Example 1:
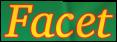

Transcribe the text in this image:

Facet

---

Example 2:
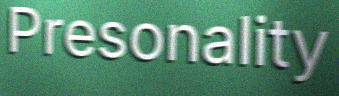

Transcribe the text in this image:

Presonality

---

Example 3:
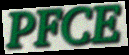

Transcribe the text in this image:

PFCE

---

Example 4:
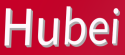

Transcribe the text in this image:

Hubei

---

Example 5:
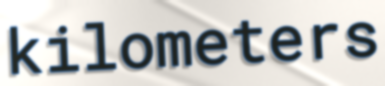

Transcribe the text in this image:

kilometers